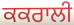
ਕਕਰਾਲੀ